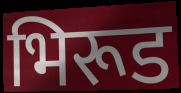
भिरूड